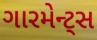
ગારમેન્ટ્સ